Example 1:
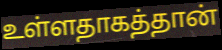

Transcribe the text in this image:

உள்ளதாகத்தான்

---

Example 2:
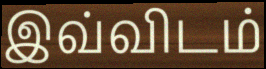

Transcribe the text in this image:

இவ்விடம்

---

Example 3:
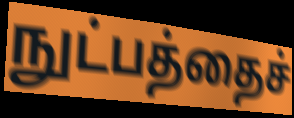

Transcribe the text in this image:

நுட்பத்தைச்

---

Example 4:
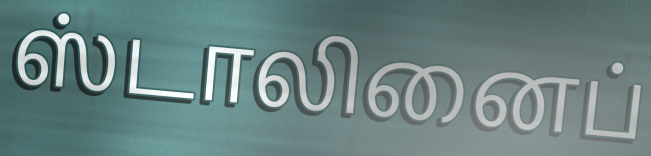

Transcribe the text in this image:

ஸ்டாலினைப்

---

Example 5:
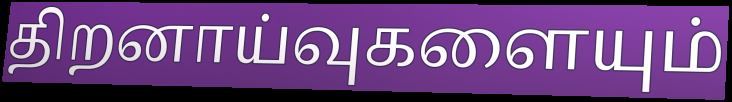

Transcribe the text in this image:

திறனாய்வுகளையும்